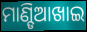
ମାଣ୍ଡିଆଖାଇ